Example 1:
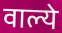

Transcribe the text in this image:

वाल्ये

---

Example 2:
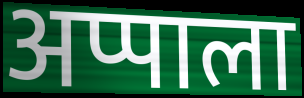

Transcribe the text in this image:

अप्पाला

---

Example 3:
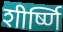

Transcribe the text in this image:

शीर्ष्णि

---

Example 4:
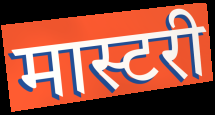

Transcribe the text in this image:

मास्टरी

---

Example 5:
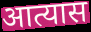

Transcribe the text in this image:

आत्यास